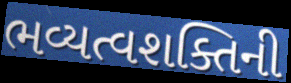
ભવ્યત્વશક્તિની